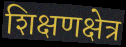
शिक्षणक्षेत्र